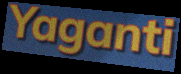
Yaganti